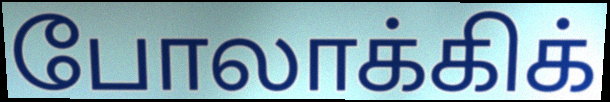
போலாக்கிக்